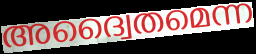
അദ്വൈതമെന്ന